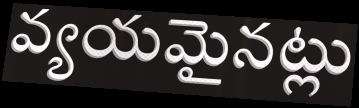
వ్యయమైనట్లు